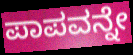
ಪಾಪವನ್ನೇ